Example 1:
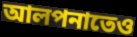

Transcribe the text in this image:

আলপনাতেও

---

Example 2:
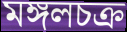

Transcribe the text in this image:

মঙ্গলচক্র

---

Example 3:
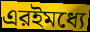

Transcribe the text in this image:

এরইমধ্যে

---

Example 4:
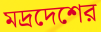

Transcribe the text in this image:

মদ্রদেশের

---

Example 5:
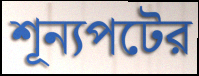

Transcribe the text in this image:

শূন্যপটের